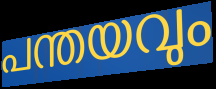
പന്തയവും